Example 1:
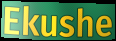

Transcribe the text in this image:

Ekushe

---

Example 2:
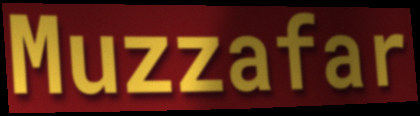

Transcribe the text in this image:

Muzzafar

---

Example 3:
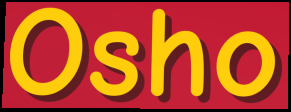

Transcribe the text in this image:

Osho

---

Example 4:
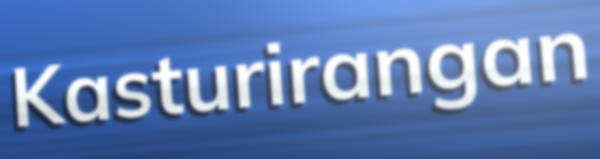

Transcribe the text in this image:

Kasturirangan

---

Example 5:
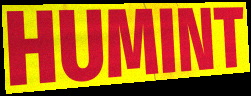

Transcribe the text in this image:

HUMINT